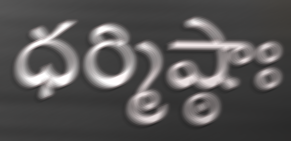
ధర్మిష్ఠాః